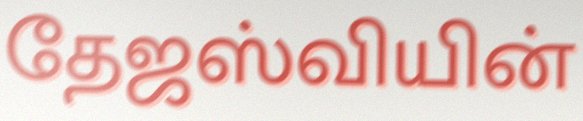
தேஜஸ்வியின்